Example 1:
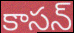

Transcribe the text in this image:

కాసన్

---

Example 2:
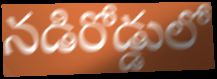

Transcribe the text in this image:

నడిరోడ్డులో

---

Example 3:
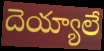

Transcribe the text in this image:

దెయ్యాలే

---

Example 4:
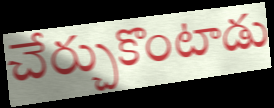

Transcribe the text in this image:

చేర్చుకొంటాడు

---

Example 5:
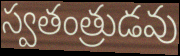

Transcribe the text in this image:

స్వతంత్రుడవు